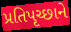
પ્રતિપૃચ્છાને